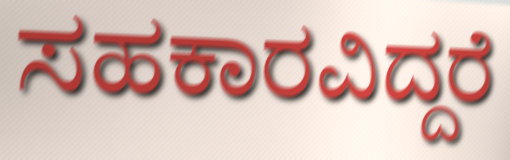
ಸಹಕಾರವಿದ್ದರೆ